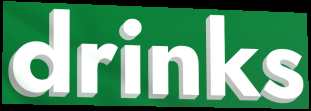
drinks